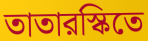
তাতারস্কিতে